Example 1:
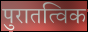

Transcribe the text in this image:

पुरातत्विक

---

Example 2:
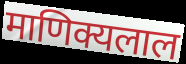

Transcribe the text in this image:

माणिक्यलाल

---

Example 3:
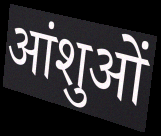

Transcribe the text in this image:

आंशुओं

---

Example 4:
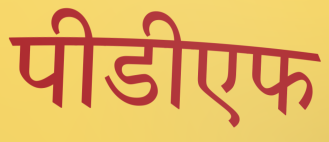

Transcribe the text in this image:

पीडीएफ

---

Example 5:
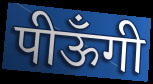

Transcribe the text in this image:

पीऊँगी